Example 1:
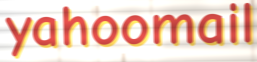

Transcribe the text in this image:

yahoomail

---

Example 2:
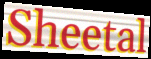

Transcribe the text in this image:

Sheetal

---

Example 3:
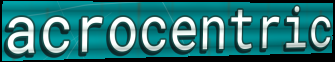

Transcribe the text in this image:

acrocentric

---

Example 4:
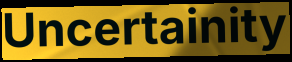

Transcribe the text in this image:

Uncertainity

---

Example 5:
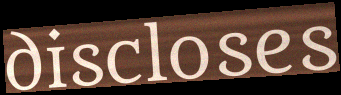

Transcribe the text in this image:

discloses